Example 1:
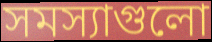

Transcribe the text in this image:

সমস্যাগুলো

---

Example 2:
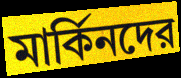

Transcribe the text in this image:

মার্কিনদের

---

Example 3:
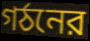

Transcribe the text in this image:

গঠনের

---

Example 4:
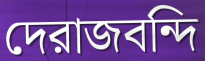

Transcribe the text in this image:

দেরাজবন্দি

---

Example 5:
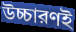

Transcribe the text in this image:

উচ্চারণই